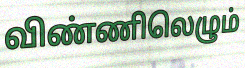
விண்ணிலெழும்